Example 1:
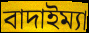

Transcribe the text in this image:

বাদাইম্যা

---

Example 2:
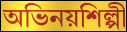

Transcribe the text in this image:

অভিনয়শিল্পী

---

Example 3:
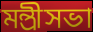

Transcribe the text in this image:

মন্ত্রীসভা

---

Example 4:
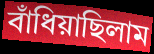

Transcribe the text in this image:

বাঁধিয়াছিলাম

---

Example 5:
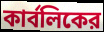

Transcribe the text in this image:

কার্বলিকের